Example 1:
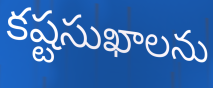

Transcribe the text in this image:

కష్టసుఖాలను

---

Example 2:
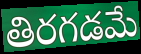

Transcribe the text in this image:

తిరగడమే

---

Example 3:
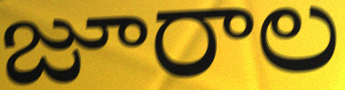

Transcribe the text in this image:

జూరాల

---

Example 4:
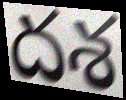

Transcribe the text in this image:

దశ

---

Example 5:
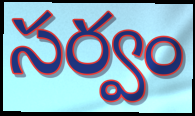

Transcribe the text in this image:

సర్వం